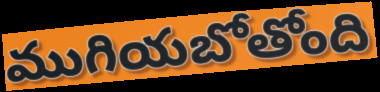
ముగియబోతోంది